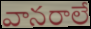
వానరాలే